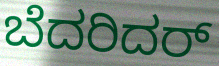
ಬೆದರಿದರ್